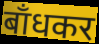
बाँधकर